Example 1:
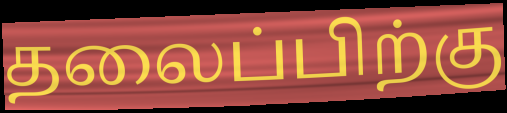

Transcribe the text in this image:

தலைப்பிற்கு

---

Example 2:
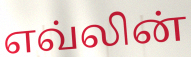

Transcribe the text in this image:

எவ்லின்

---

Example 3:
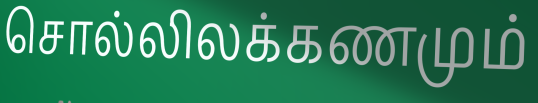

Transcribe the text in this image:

சொல்லிலக்கணமும்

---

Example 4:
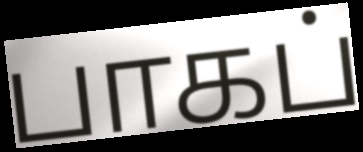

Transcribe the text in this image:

பாகப்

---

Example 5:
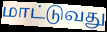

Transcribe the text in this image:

மாட்டுவது